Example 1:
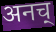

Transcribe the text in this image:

अनच्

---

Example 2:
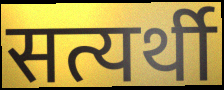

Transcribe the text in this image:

सत्यर्थी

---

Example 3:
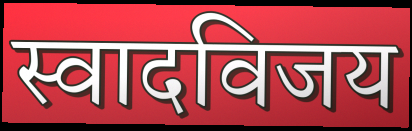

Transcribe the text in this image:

स्वादविजय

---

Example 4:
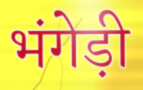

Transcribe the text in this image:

भंगेड़ी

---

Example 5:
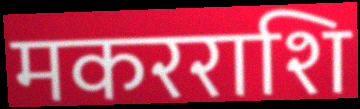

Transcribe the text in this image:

मकरराशि